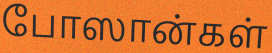
போஸான்கள்